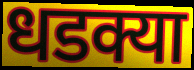
धडक्या